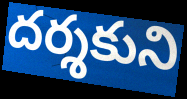
దర్శకుని